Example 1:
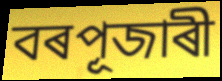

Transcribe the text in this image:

বৰপূজাৰী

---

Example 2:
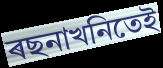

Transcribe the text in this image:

ৰছনাখনিতেই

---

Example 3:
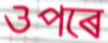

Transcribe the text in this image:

ওপৰে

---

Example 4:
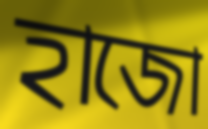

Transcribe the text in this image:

হাজো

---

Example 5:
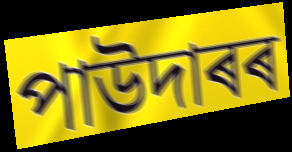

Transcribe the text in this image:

পাউদাৰৰ